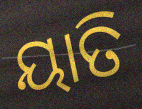
ୟାତି